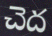
చెద